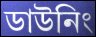
ডাউনিং